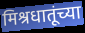
मिश्रधातूंच्या